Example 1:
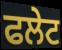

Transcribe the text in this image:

ਫਲੇਟ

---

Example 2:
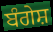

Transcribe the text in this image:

ਬੰਗੇਸ਼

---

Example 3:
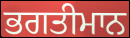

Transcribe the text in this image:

ਭਗਤੀਮਾਨ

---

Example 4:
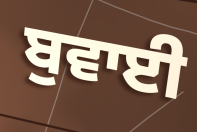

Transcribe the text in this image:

ਬੁਵਾਈ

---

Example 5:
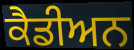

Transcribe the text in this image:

ਕੈਡੀਅਨ